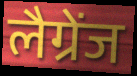
लैग्रेंज